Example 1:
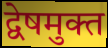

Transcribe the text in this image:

द्वेषमुक्त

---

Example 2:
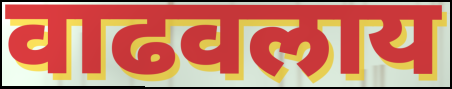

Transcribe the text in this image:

वाढवलाय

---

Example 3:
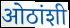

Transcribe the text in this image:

ओठांशी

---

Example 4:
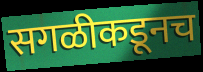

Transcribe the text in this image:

सगळीकडूनच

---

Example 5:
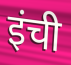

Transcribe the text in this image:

इंची